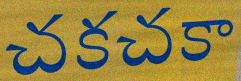
చకచకా